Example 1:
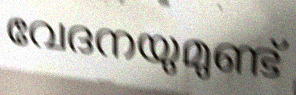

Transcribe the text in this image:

വേദനയുമുണ്ട്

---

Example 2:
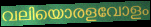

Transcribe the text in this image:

വലിയൊരളവോളം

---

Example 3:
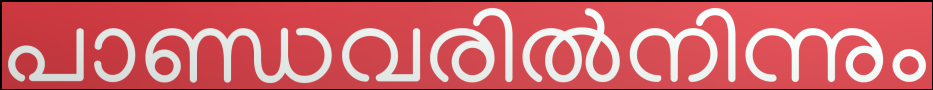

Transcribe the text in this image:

പാണ്ഡവരിൽനിന്നും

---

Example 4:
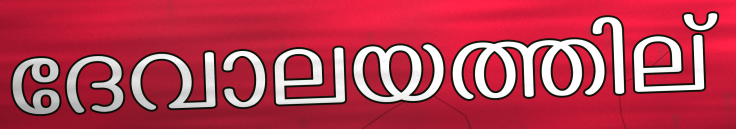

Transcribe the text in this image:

ദേവാലയത്തില്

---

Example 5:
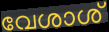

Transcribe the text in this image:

വേശാശ്